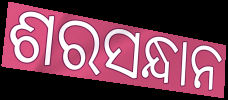
ଶରସନ୍ଧାନ